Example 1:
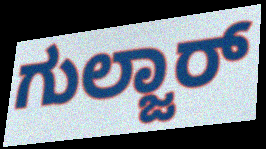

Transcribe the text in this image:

ಗುಲ್ಜಾರ್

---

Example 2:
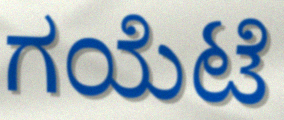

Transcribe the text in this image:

ಗಯೆಟೆ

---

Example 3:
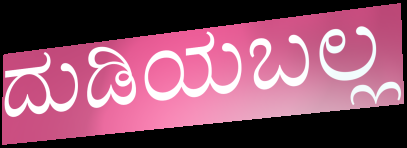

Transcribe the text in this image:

ದುಡಿಯಬಲ್ಲ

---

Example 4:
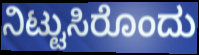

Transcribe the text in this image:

ನಿಟ್ಟುಸಿರೊಂದು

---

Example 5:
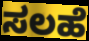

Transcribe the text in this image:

ಸಲಹೆ